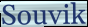
Souvik